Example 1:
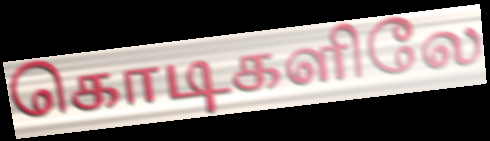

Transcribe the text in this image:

கொடிகளிலே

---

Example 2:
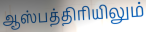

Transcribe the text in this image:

ஆஸ்பத்திரியிலும்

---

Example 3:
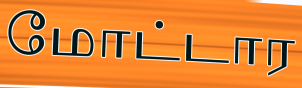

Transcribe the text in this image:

மோட்டார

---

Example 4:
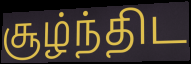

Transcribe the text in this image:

சூழ்ந்திட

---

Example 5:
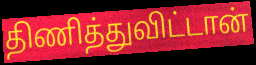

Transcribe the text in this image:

திணித்துவிட்டான்